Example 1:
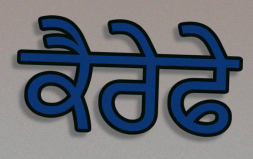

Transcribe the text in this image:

ਕੈਰੇਫੇ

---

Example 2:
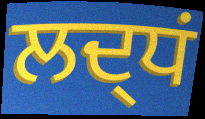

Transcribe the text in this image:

ਲਦ੍ਧਂ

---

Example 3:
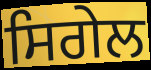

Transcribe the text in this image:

ਸਿਗੇਲ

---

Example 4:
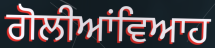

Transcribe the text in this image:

ਗੋਲੀਆਂਵਿਆਹ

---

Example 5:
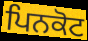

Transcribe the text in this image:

ਪਿਨਕੋਟ